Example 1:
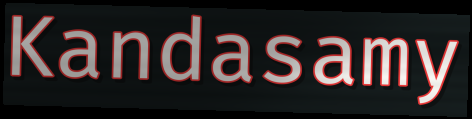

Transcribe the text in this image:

Kandasamy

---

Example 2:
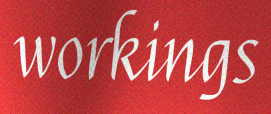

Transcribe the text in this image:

workings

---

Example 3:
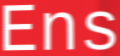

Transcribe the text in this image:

Ens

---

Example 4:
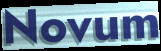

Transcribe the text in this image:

Novum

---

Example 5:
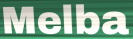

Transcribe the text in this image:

Melba